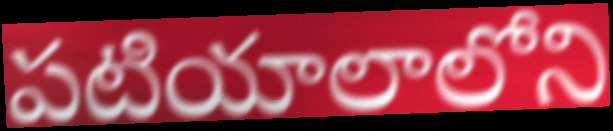
పటియాలాలోని